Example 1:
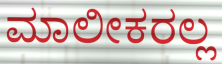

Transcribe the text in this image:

ಮಾಲೀಕರಲ್ಲ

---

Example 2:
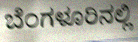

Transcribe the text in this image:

ಬೆಂಗಳೂರಿನಲ್ಲಿ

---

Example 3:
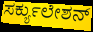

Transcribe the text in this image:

ಸರ್ಕ್ಯುಲೇಶನ್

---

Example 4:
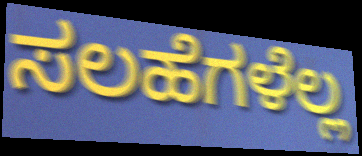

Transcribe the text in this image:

ಸಲಹೆಗಳೆಲ್ಲ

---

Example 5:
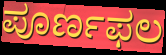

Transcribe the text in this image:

ಪೂರ್ಣಫಲ